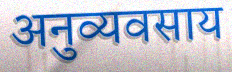
अनुव्यवसाय